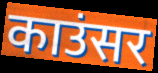
काउंसर